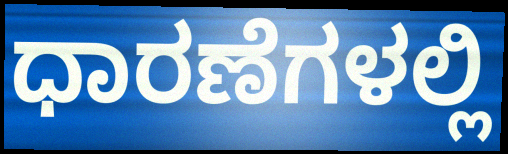
ಧಾರಣೆಗಳಲ್ಲಿ